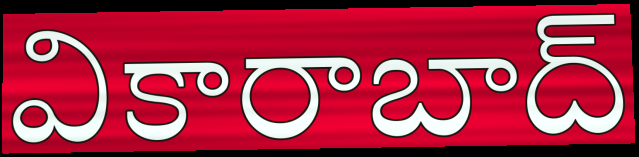
వికారాబాద్